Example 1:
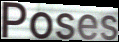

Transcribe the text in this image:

Poses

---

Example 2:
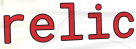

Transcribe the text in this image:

relic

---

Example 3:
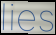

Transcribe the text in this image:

lies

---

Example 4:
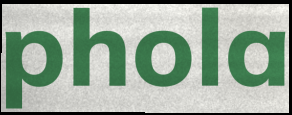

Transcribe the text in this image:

phola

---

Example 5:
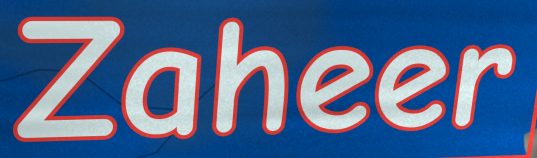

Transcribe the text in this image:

Zaheer